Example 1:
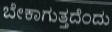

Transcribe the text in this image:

ಬೇಕಾಗುತ್ತದೆಂದು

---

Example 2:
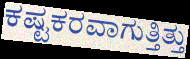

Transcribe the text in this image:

ಕಷ್ಟಕರವಾಗುತ್ತಿತ್ತು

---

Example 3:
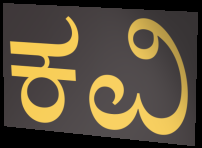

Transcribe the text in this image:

ಕವಿ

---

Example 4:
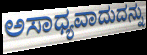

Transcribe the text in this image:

ಅಸಾಧ್ಯವಾದುದನ್ನು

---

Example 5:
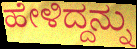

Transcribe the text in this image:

ಹೇಳಿದ್ದನ್ನು